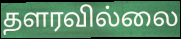
தளரவில்லை